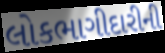
લોકભાગીદારીની